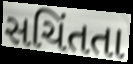
સચિંતતા